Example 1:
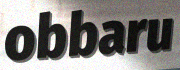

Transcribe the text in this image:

obbaru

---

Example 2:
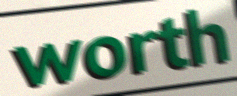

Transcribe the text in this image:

worth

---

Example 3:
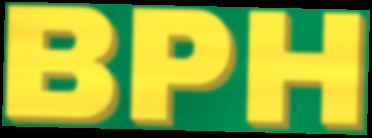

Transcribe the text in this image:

BPH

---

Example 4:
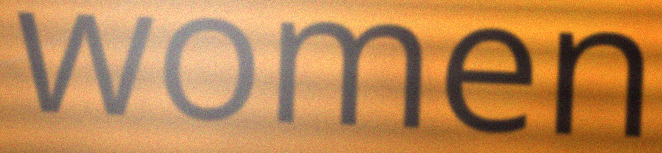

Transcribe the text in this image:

women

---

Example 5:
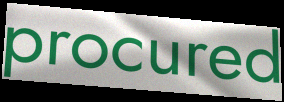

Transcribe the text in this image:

procured